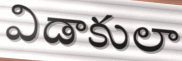
విడాకులా